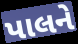
પાલને